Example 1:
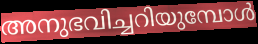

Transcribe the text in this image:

അനുഭവിച്ചറിയുമ്പോൾ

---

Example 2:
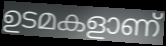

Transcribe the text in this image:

ഉടമകളാണ്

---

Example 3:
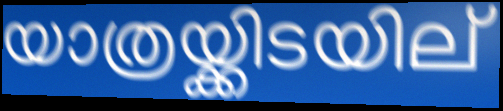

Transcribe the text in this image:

യാത്രയ്ക്കിടയില്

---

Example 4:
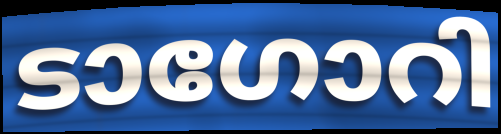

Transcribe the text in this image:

ടാഗോറി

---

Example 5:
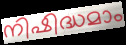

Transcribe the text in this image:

നിഷിദ്ധമാം